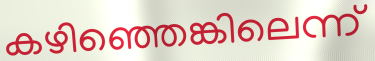
കഴിഞ്ഞെങ്കിലെന്ന്